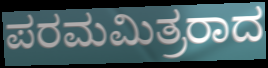
ಪರಮಮಿತ್ರರಾದ